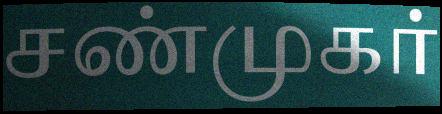
சண்முகர்